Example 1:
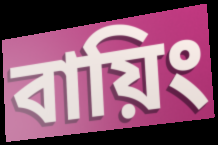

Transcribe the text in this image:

বায়িং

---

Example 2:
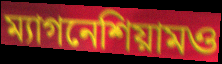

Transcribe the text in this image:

ম্যাগনেশিয়ামও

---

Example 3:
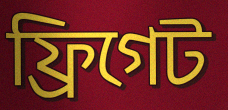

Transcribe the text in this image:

ফ্রিগেট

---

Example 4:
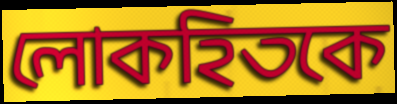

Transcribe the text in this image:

লোকহিতকে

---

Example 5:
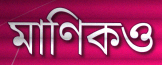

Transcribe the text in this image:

মাণিকও